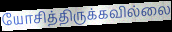
யோசித்திருக்கவில்லை